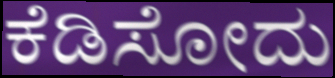
ಕೆಡಿಸೋದು